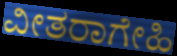
ವೀತರಾಗೇಹಿ